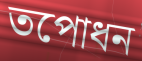
তপোধন